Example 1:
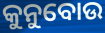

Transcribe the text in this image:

କୁନୁବୋଉ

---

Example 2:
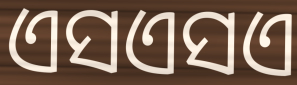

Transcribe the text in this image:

ଏସଏସଏ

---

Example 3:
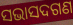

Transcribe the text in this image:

ସଭାସଦଗଣ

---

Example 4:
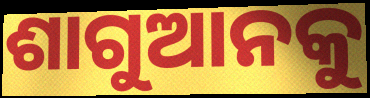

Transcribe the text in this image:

ଶାଗୁଆନକୁ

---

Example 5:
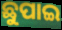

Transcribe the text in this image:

ଛୁପାଇ